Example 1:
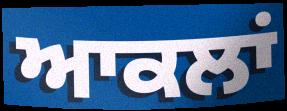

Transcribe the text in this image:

ਆਕਲਾਂ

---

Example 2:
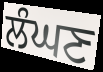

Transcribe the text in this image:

ਲੰਘਣ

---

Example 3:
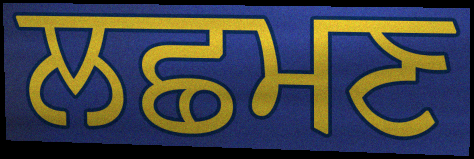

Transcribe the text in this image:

ਲਛਮਣ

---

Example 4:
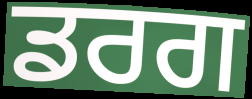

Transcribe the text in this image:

ਡਰਗ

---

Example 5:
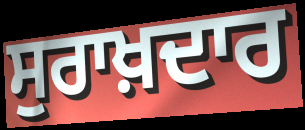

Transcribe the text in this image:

ਸੁਰਾਖ਼ਦਾਰ